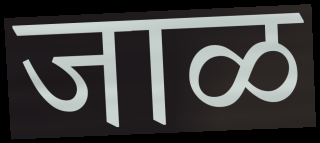
जाळ